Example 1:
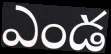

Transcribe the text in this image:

ఎండ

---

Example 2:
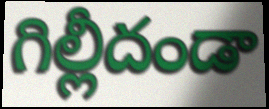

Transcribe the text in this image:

గిల్లీదండా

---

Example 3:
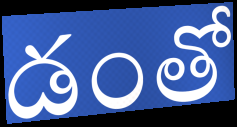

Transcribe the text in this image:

డంతో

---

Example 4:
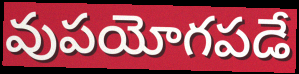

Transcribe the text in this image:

వుపయోగపడే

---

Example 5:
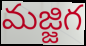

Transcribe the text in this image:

మజ్జిగ